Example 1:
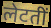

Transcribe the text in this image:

लेटतीं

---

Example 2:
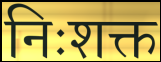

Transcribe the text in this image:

निःशक्त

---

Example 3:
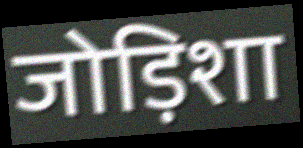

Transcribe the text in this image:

जोड़िशा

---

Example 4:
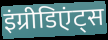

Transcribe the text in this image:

इंग्रीडिएंट्स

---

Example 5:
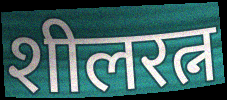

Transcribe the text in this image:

शीलरत्न